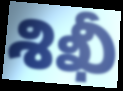
శిఖీ